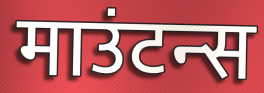
माउंटन्स